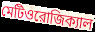
মেটিওরোজিক্যাল